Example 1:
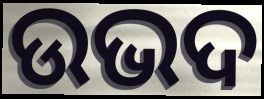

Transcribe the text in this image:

ଉଭଦ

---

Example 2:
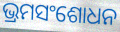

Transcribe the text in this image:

ଭ୍ରମସଂଶୋଧନ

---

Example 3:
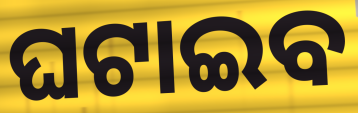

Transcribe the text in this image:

ଘଟାଇବ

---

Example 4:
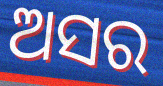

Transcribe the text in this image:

ଅସର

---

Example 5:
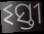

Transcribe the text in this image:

ଽସ୍ତୀ